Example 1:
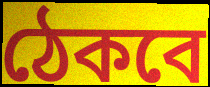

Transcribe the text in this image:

ঠেকবে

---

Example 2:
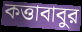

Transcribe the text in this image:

কত্তাবাবুর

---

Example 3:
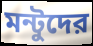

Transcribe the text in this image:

মন্টুদের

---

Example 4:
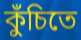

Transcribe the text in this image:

কুঁচিতে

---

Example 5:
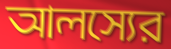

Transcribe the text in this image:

আলস্যের